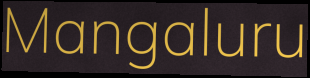
Mangaluru